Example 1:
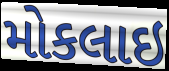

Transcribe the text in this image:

મોકલાઇ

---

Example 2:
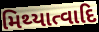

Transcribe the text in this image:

મિથ્યાત્વાદિ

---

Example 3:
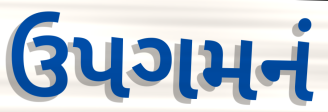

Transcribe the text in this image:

ઉપગમનં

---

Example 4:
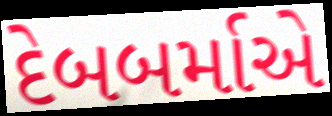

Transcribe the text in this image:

દેબબર્માએ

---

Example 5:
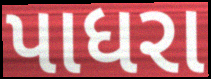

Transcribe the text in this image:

પાધરા